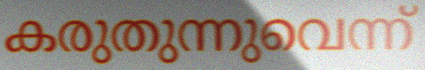
കരുതുന്നുവെന്ന്